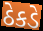
ઠેકડે